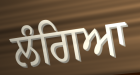
ਲੰਗਿਆ